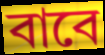
বাবে